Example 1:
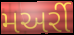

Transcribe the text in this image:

મઅર્રી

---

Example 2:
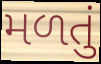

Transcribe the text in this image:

મળતું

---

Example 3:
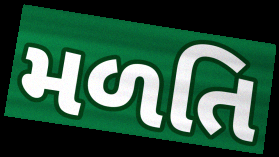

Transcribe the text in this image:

મળતિ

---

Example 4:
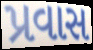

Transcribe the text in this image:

પ્રવાસ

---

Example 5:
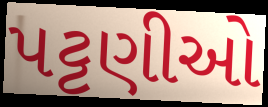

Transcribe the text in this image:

પટ્ટણીઓ